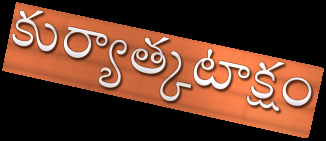
కుర్యాత్కటాక్షం